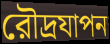
রৌদ্রযাপন